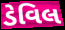
ડેવિલ